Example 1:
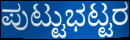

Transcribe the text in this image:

ಪುಟ್ಟುಭಟ್ಟರ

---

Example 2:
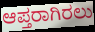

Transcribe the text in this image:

ಆಪ್ತರಾಗಿರಲು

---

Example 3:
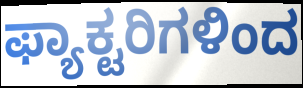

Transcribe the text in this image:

ಫ್ಯಾಕ್ಟರಿಗಳಿಂದ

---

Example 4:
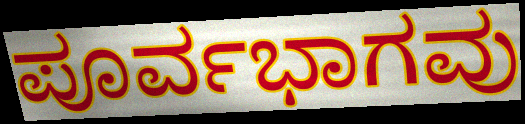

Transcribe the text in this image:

ಪೂರ್ವಭಾಗವು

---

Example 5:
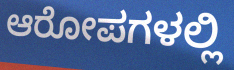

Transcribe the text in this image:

ಆರೋಪಗಳಲ್ಲಿ